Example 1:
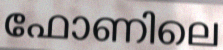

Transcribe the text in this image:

ഫോണിലെ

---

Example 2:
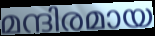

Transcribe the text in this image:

മന്ദിരമായ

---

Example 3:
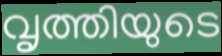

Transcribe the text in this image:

വൃത്തിയുടെ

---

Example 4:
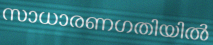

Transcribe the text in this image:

സാധാരണഗതിയിൽ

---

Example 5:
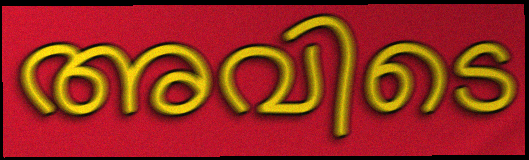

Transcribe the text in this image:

അവിടെ